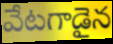
వేటగాడైన